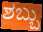
ಶಬ್ಬು